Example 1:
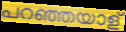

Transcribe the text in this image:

പറഞ്ഞയാള്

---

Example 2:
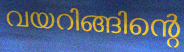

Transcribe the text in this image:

വയറിങ്ങിന്റെ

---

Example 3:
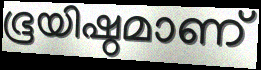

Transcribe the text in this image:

ഭൂയിഷ്ഠമാണ്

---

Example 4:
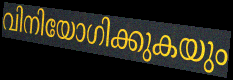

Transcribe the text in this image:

വിനിയോഗിക്കുകയും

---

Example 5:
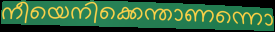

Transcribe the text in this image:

നീയെനിക്കെന്താണന്നൊ